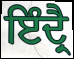
ਇੰਦ੍ਰੈ